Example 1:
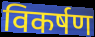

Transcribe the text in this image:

विकर्षण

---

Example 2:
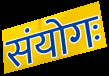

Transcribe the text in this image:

संयोगः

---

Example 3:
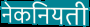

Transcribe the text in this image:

नेकनियती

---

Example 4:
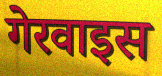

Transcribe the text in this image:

गेरवाइस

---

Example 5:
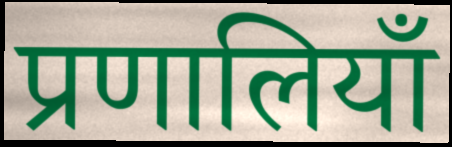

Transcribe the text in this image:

प्रणालियाँ